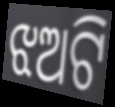
ଝଅଟି